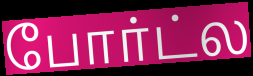
போர்ட்ல